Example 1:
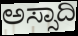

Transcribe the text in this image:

ಅಸ್ಸಾದಿ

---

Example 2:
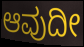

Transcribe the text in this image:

ಆವುದೀ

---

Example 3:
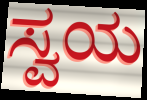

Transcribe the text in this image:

ಸ್ವಯ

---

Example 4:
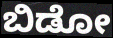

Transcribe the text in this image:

ಬಿಡೋ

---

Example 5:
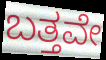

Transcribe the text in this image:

ಬತ್ತವೇ